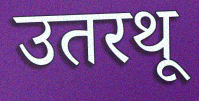
उतरथू